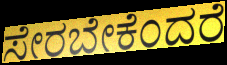
ಸೇರಬೇಕೆಂದರೆ